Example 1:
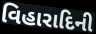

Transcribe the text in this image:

વિહારાદિની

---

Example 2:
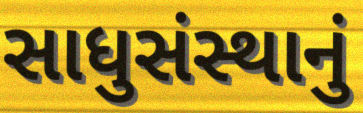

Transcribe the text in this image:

સાધુસંસ્થાનું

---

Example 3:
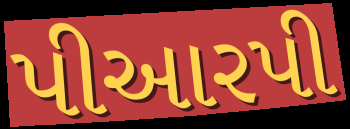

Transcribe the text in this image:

પીઆરપી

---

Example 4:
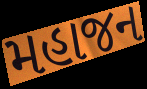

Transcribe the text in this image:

મહાજન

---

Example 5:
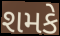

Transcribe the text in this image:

શમકે